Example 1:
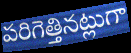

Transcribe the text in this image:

పరిగెత్తినట్లుగా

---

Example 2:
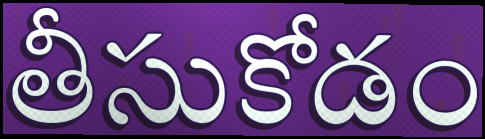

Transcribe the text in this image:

తీసుకోడం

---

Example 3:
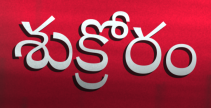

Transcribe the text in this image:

శుక్రోరం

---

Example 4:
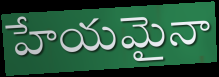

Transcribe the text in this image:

హేయమైనా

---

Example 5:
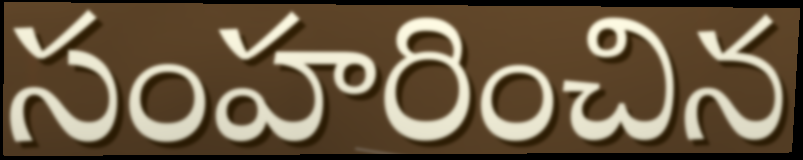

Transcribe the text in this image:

సంహరించిన